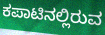
ಕಪಾಟಿನಲ್ಲಿರುವ